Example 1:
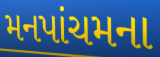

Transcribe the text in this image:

મનપાંચમના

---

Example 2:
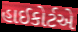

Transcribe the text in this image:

હાઈકોર્ટએ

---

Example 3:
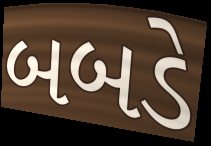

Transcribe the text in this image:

બબડે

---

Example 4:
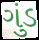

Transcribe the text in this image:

ગુંડ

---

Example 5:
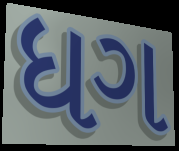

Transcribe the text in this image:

ધગ